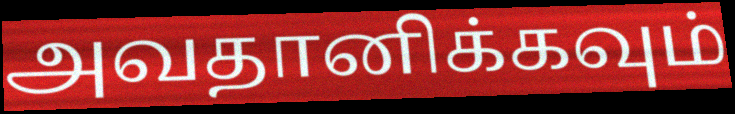
அவதானிக்கவும்